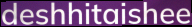
deshhitaishee